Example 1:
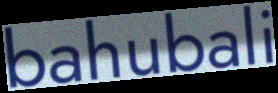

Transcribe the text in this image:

bahubali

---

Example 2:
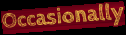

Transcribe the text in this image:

Occasionally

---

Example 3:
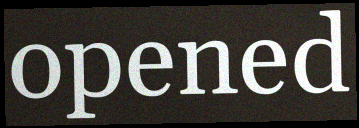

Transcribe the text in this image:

opened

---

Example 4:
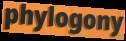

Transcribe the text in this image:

phylogony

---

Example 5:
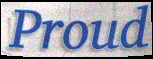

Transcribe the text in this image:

Proud